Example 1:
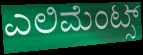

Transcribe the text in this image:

ಎಲಿಮೆಂಟ್ಸ್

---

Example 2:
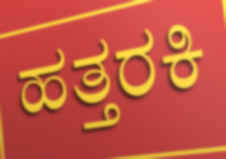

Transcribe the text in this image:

ಹತ್ತರಕಿ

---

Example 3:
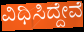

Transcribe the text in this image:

ವಿಧಿಸಿದ್ದೇವೆ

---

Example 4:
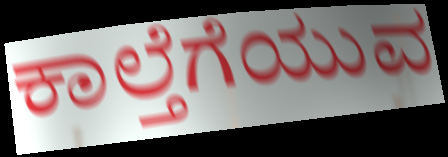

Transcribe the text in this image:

ಕಾಲ್ತೆಗೆಯುವ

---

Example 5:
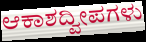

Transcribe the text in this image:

ಆಕಾಶದ್ವೀಪಗಳು